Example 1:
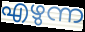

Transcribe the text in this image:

എഴുന്ന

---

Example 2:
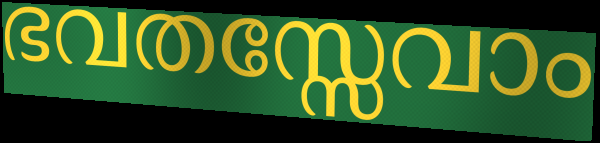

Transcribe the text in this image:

ഭവതസ്സേവാം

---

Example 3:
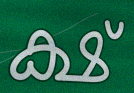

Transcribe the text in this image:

ക്ഷ്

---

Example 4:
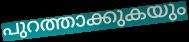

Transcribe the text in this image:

പുറത്താക്കുകയും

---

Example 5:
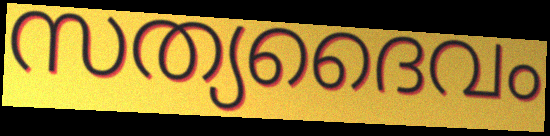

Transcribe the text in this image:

സത്യദൈവം